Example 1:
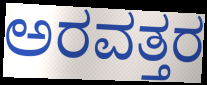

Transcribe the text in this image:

ಅರವತ್ತರ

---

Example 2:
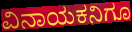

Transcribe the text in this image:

ವಿನಾಯಕನಿಗೂ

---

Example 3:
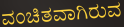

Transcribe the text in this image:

ವಂಚಿತವಾಗಿರುವ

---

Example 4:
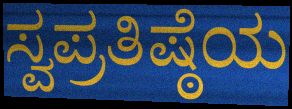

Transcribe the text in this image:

ಸ್ವಪ್ರತಿಷ್ಠೆಯ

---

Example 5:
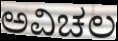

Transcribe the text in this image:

ಅವಿಚಲ